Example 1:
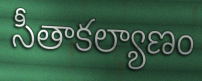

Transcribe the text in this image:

సీతాకల్యాణం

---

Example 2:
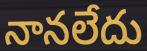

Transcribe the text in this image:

నానలేదు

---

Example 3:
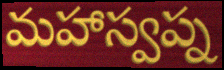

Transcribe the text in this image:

మహాస్వప్న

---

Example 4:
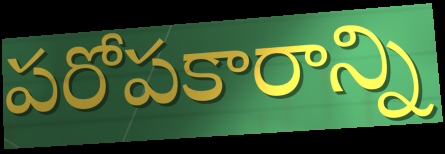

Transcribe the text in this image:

పరోపకారాన్ని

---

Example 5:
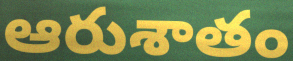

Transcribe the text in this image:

ఆరుశాతం